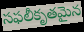
సఫలీకృతమైన